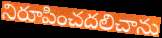
నిరూపించదలిచాను